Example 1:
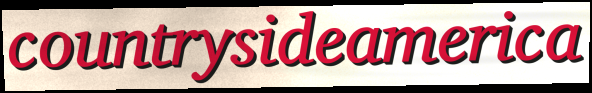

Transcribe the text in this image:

countrysideamerica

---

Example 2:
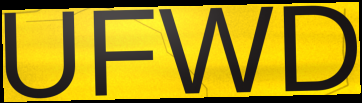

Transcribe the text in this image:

UFWD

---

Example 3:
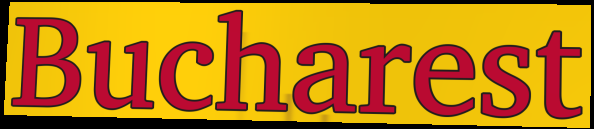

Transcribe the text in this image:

Bucharest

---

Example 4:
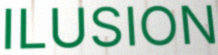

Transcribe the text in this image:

ILUSION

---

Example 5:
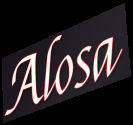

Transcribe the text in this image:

Alosa